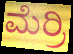
ಮೆರ್ರಿ